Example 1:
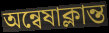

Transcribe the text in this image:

অন্বেষাক্লান্ত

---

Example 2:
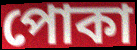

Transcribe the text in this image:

পোকা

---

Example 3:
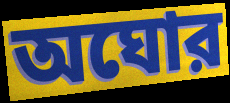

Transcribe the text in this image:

অঘোর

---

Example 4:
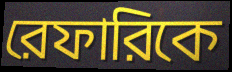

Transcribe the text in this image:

রেফারিকে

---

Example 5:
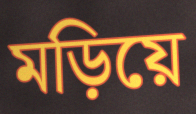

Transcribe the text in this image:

মড়িয়ে